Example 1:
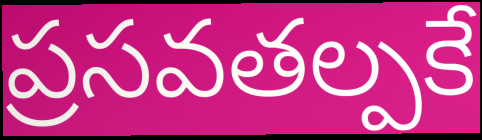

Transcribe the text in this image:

ప్రసవతల్పకే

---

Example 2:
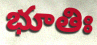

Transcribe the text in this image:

భూతిః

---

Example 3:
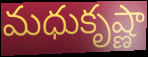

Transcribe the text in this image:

మధుకృష్ణా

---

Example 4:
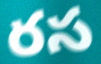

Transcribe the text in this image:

రస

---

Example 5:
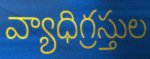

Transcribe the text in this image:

వ్యాధిగ్రస్తుల